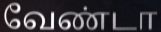
வேண்டா